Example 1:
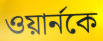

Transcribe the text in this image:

ওয়ার্নকে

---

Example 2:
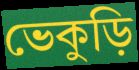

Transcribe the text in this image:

ভেকুড়ি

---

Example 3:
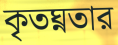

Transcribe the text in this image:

কৃতঘ্নতার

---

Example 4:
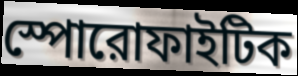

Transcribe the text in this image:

স্পোরোফাইটিক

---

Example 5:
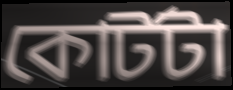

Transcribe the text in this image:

কোর্টটা